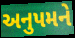
અનુપમને